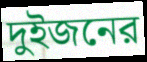
দুইজনের